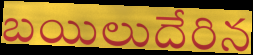
బయిలుదేరిన